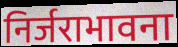
निर्जराभावना